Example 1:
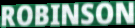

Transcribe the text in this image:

ROBINSON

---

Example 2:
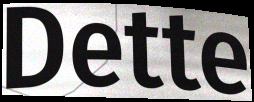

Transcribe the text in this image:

Dette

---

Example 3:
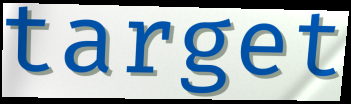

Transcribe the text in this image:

target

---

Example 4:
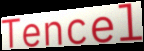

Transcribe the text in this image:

Tencel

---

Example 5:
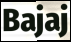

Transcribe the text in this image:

Bajaj